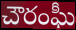
చౌరంఘీ